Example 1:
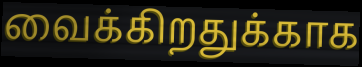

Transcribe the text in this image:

வைக்கிறதுக்காக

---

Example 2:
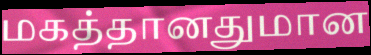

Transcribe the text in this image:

மகத்தானதுமான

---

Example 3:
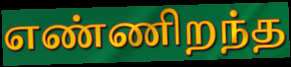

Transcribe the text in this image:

எண்ணிறந்த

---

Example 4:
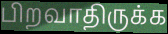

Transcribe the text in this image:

பிறவாதிருக்க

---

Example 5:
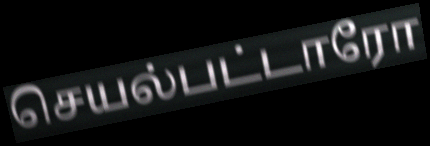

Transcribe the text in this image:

செயல்பட்டாரோ